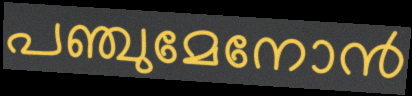
പഞ്ചുമേനോൻ